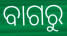
ବାଗରୁ